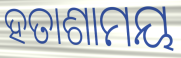
ହତାଶାମୟ